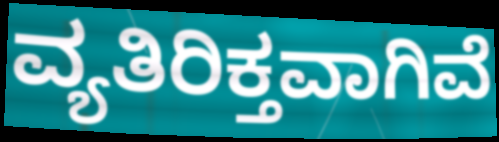
ವ್ಯತಿರಿಕ್ತವಾಗಿವೆ